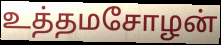
உத்தமசோழன்